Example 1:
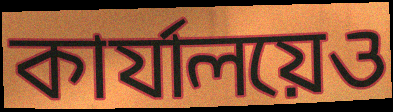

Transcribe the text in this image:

কার্যালয়েও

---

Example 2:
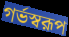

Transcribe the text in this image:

গর্ভস্বরূপ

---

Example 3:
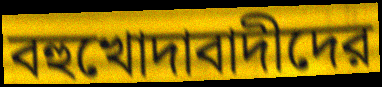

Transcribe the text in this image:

বহুখোদাবাদীদের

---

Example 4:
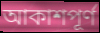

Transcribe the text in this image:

আকাশপূর্ণ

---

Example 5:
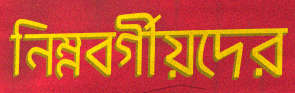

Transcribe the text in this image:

নিম্নবর্গীয়দের